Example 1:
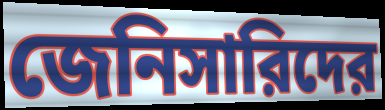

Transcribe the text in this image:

জেনিসারিদের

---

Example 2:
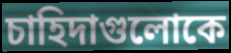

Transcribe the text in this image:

চাহিদাগুলোকে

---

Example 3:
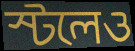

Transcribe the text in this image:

স্টলেও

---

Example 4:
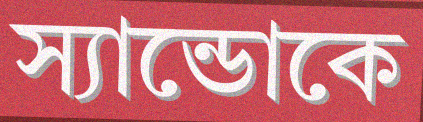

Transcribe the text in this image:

স্যান্ডোকে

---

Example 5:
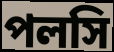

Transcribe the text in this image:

পলসি